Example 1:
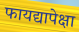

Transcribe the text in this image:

फायद्यापेक्षा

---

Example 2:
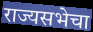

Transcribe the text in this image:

राज्यसभेचा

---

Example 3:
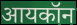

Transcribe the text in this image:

आयकॉन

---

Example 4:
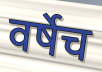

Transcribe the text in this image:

वर्षेच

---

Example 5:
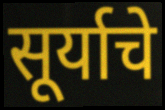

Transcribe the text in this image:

सूर्याचे